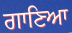
ਗਾਣਿਆ